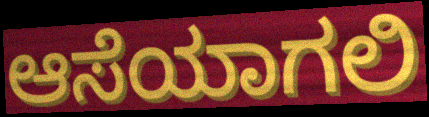
ಆಸೆಯಾಗಲಿ